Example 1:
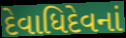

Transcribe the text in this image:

દેવાધિદેવનાં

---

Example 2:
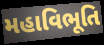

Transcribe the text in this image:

મહાવિભૂતિ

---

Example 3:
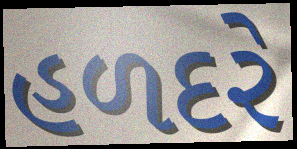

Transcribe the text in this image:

હળદરે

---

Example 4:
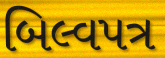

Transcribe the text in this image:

બિલ્વપત્ર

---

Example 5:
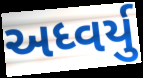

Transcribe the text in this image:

અધ્વર્યુ